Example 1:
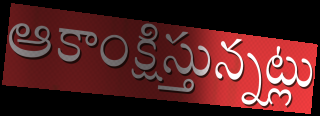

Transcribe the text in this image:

ఆకాంక్షిస్తున్నట్లు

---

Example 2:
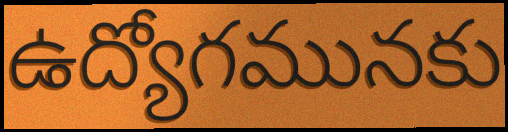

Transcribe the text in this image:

ఉద్యోగమునకు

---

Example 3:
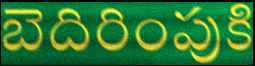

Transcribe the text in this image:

బెదిరింపుకి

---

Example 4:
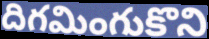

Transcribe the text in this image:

దిగమింగుకొని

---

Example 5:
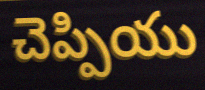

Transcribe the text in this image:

చెప్పియు